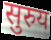
सुरुय